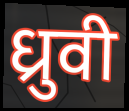
ध्रुवी